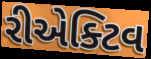
રીએક્ટિવ